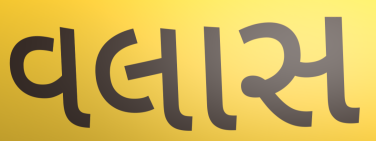
વલાસ